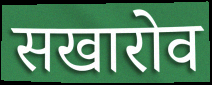
सखारोव